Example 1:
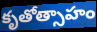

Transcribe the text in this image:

కృతోత్సాహం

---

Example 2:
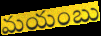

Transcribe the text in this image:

మయంబు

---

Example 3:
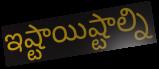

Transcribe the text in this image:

ఇష్టాయిష్టాల్ని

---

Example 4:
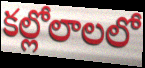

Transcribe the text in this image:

కల్లోలాలలో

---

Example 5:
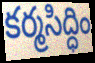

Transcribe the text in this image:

కర్మసిద్ధిం